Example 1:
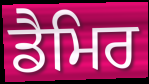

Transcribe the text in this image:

ਡੈਮਿਰ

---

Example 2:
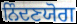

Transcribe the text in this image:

ਨਿੰਦਣਯੋਗ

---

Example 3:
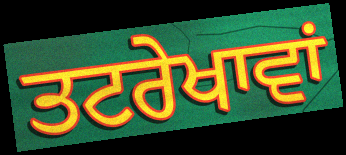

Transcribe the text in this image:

ਤਟਰੇਖਾਵਾਂ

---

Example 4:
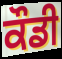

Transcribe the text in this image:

ਕੌਡੀ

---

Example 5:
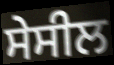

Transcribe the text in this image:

ਸੇਸੀਲ